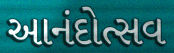
આનંદોત્સવ